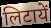
लिटायें